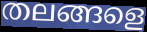
തലങ്ങളെ